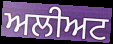
ਅਲੀਅਟ